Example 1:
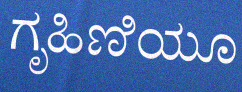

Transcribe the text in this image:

ಗೃಹಿಣಿಯೂ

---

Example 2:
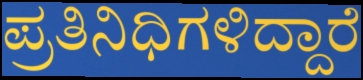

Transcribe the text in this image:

ಪ್ರತಿನಿಧಿಗಳಿದ್ದಾರೆ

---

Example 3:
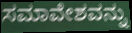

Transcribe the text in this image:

ಸಮಾವೇಶವನ್ನು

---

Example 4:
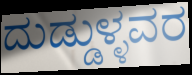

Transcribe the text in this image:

ದುಡ್ಡುಳ್ಳವರ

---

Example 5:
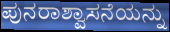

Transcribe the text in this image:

ಪುನರಾಶ್ವಾಸನೆಯನ್ನು